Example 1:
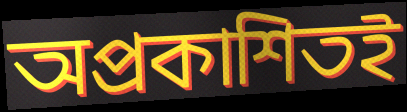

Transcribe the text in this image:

অপ্রকাশিতই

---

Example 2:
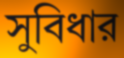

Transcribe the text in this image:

সুবিধার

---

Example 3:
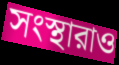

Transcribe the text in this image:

সংস্থারাও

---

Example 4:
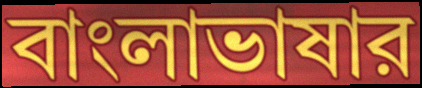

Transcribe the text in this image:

বাংলাভাষার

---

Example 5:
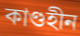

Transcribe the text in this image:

কাণ্ডহীন